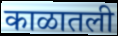
काळातली